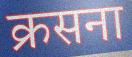
क्रसना